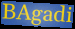
BAgadi